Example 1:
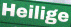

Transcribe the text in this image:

Heilige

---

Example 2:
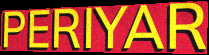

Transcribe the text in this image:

PERIYAR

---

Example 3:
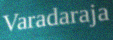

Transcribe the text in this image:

Varadaraja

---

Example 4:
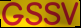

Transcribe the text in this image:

GSSV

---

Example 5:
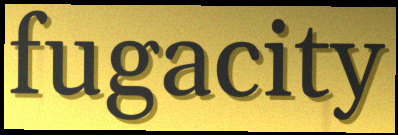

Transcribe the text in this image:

fugacity